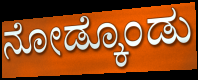
ನೋಡ್ಕೊಂಡು